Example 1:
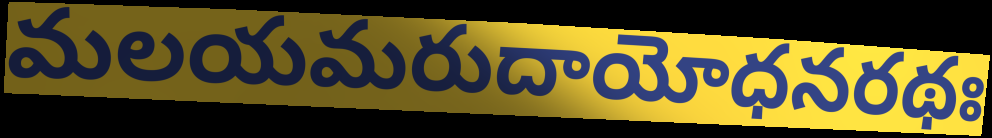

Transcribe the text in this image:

మలయమరుదాయోధనరథః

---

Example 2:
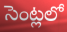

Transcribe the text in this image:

సెంట్లలో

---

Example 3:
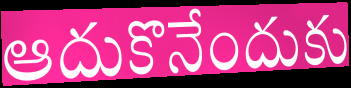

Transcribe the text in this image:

ఆదుకొనేందుకు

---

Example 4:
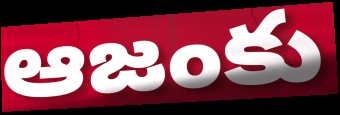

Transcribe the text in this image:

ఆజంకు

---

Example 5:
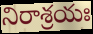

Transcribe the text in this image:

నిరాశ్రయః